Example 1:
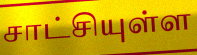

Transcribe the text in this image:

சாட்சியுள்ள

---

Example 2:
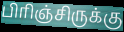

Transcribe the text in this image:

பிரிஞ்சிருக்கு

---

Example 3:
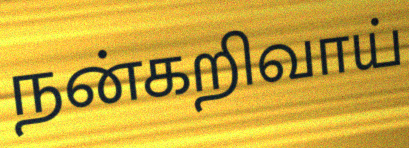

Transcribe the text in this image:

நன்கறிவாய்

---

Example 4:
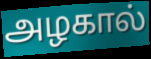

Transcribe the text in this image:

அழகால்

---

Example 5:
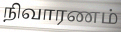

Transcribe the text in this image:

நிவாரணம்